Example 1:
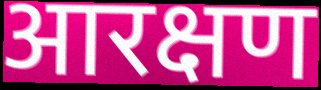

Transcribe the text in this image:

आरक्षण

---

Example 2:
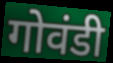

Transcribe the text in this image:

गोवंडी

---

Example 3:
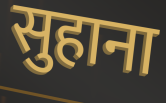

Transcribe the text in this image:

सुहाना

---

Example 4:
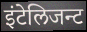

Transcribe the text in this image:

इंटेलिजन्ट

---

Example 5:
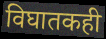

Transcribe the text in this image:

विघातकही